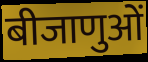
बीजाणुओं